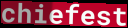
chiefest